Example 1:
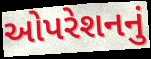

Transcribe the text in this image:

ઓપરેશનનું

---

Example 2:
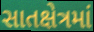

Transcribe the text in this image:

સાતક્ષેત્રમાં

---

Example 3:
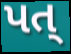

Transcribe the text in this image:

પત્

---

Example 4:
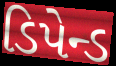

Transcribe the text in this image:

ડિપેન્ડ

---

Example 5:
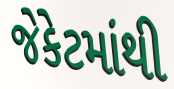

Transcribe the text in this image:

જેકેટમાંથી